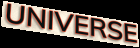
UNIVERSE